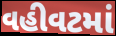
વહીવટમાં